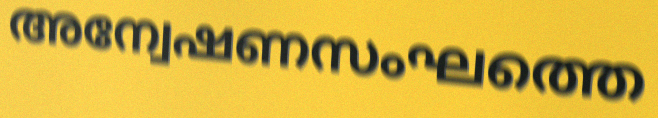
അന്വേഷണസംഘത്തെ